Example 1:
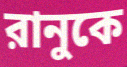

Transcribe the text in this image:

রানুকে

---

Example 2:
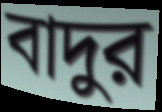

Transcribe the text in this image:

বাদুর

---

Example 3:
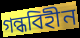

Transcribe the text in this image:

গন্ধবিহীন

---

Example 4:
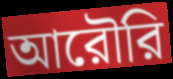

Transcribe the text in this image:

আরৌরি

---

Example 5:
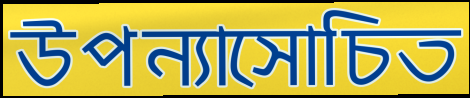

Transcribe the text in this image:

উপন্যাসোচিত